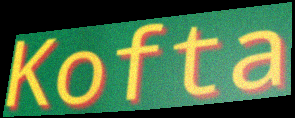
Kofta